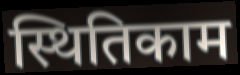
स्थितिकाम